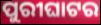
ପୁରୀଘାଟର